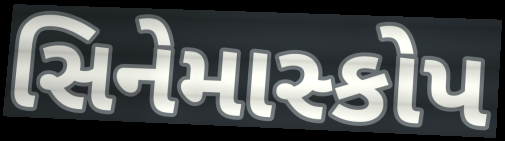
સિનેમાસ્કોપ